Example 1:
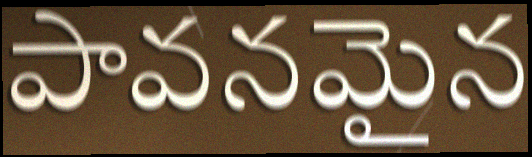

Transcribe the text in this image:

పావనమైన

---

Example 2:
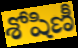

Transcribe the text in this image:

శోషిణీ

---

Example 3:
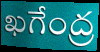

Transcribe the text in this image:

ఖగేంద్ర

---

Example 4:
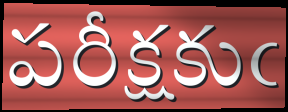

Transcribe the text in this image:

పరీక్షకుఁ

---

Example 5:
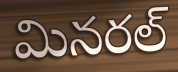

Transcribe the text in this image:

మినరల్